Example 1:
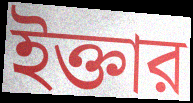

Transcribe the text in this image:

ইক্তার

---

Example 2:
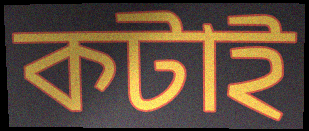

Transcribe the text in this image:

কটাই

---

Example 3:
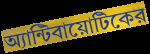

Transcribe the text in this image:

অ্যান্টিবায়োটিকের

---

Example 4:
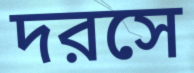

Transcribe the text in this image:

দরসে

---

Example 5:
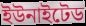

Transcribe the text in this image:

ইউনাইটেড